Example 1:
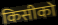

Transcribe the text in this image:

किसीको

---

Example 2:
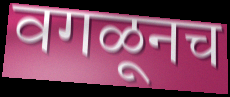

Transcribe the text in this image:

वगळूनच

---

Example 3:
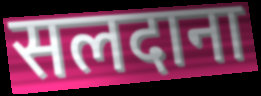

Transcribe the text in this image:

सलदाना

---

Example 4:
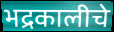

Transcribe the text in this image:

भद्रकालीचे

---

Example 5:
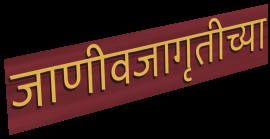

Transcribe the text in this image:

जाणीवजागृतीच्या